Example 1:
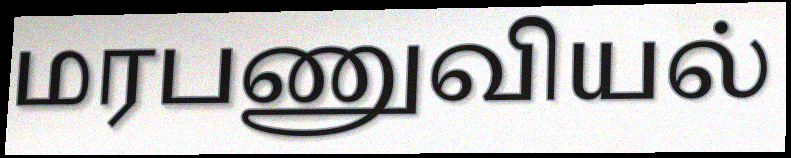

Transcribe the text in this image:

மரபணுவியல்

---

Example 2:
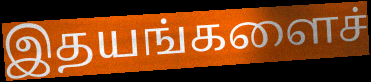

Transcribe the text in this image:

இதயங்களைச்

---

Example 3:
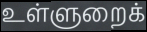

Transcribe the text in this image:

உள்ளுறைக்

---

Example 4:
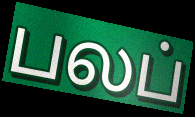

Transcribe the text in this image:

பலப்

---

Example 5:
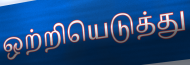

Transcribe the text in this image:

ஒற்றியெடுத்து